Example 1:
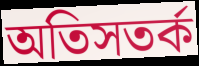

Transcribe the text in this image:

অতিসতর্ক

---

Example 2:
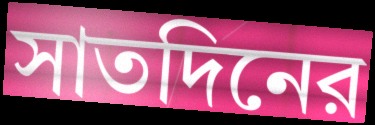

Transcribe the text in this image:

সাতদিনের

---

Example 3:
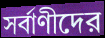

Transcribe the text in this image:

সর্বাণীদের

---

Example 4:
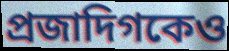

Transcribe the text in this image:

প্রজাদিগকেও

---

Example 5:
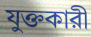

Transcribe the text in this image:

যুক্তকারী